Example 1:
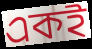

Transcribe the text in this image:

একই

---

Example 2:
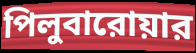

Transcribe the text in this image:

পিলুবারোয়ার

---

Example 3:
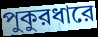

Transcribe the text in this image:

পুকুরধারে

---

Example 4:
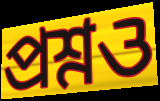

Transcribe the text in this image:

প্রশ্নও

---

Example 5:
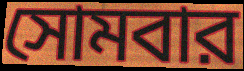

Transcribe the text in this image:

সোমবার